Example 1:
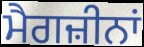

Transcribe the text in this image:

ਮੈਗਜ਼ੀਨਾਂ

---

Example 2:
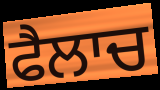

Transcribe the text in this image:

ਫੈਲਾਚ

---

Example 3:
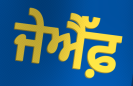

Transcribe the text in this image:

ਜੇਐੱਫ਼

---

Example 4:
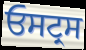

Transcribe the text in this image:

ਓਸਟ੍ਰਸ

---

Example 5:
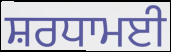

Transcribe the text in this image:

ਸ਼ਰਧਾਮਈ